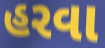
હરવા